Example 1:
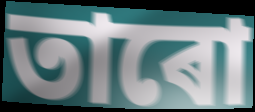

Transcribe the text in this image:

তাৰো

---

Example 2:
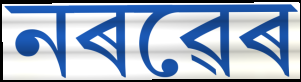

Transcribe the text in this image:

নৰৱেৰ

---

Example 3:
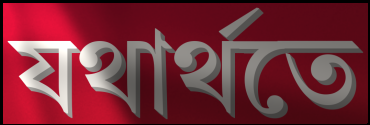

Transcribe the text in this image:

যথাৰ্থতে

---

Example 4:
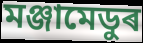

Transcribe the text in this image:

মঞ্জামেডুৰ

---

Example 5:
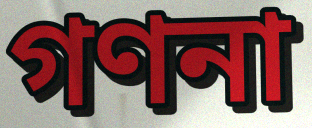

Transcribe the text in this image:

গণনা